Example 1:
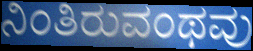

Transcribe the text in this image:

ನಿಂತಿರುವಂಥವು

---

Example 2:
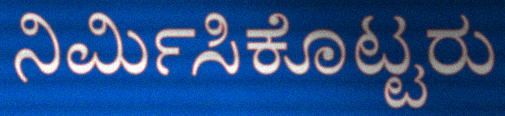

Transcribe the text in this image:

ನಿರ್ಮಿಸಿಕೊಟ್ಟರು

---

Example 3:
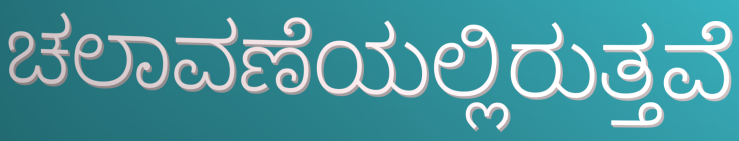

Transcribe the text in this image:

ಚಲಾವಣೆಯಲ್ಲಿರುತ್ತವೆ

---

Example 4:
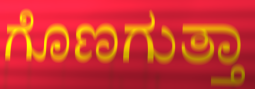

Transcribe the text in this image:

ಗೊಣಗುತ್ತಾ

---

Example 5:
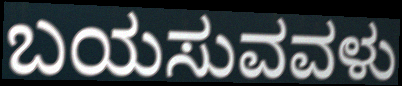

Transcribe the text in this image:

ಬಯಸುವವಳು